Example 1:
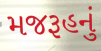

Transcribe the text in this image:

મજરૂહનું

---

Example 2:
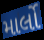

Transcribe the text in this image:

માર્લો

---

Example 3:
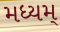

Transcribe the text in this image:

મધ્યમ્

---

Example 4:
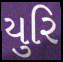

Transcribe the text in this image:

યુરિ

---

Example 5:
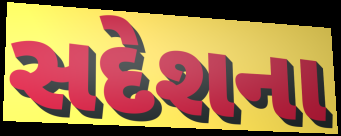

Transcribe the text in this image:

સદેશના